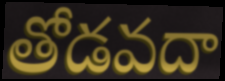
తోడవదా